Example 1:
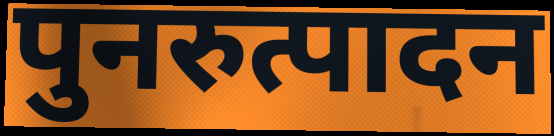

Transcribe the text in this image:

पुनरुत्पादन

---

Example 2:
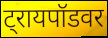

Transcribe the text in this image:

ट्रायपॉडवर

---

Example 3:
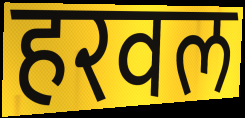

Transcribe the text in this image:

हरवल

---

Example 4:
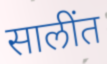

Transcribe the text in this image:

सालींत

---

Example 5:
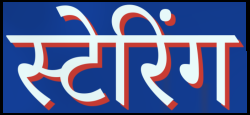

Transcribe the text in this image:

स्टेरिंग